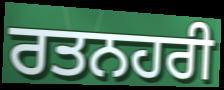
ਰਤਨਹਰੀ